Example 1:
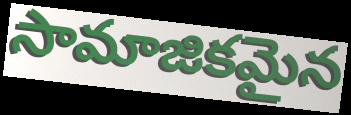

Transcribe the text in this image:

సామాజికమైన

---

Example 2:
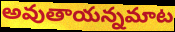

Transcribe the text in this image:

అవుతాయన్నమాట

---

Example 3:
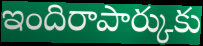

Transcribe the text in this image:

ఇందిరాపార్కుకు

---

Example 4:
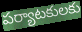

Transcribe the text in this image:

పర్యాటకులకు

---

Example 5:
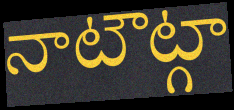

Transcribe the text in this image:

నాటౌట్గా